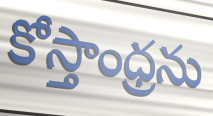
కోస్తాంధ్రను